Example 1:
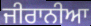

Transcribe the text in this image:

ਜੀਰਾਨੀਆ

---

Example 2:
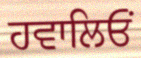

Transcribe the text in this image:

ਹਵਾਲਿਓਂ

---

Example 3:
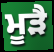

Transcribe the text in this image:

ਮੂੜੈ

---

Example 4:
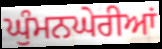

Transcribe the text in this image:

ਘੁੰਮਨਘੇਰੀਆਂ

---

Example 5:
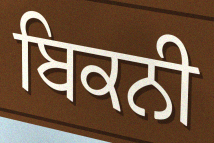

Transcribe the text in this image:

ਬਿਕਨੀ